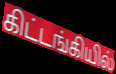
கிட்டங்கியில்